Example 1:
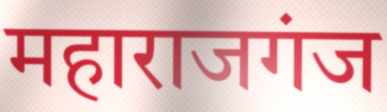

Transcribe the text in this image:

महाराजगंज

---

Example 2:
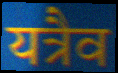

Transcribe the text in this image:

यत्रैव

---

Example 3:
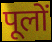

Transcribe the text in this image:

पूलों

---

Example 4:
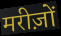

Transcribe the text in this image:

मरीज़ों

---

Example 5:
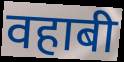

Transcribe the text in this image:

वहाबी